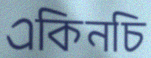
একিনচি